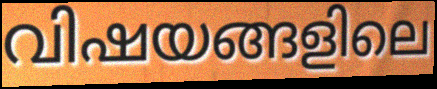
വിഷയങ്ങളിലെ